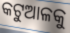
କଟୁଆଳକୁ